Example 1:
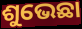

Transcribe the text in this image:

ଶୁଭେଛା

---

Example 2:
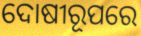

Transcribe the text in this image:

ଦୋଷୀରୂପରେ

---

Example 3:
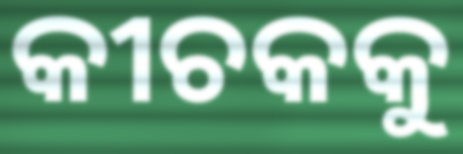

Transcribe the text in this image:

କୀଚକକୁ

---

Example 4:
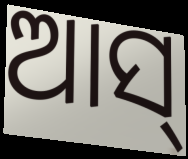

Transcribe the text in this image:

ଆସ୍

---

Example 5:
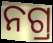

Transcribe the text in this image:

ନଗ୍ର